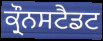
ਕ੍ਰੌਨਸਟੈਡਟ